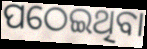
ପଠେଇଥିବା